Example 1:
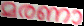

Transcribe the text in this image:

മരണാ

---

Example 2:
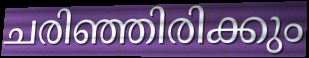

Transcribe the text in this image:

ചരിഞ്ഞിരിക്കും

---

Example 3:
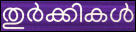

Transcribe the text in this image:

തുർക്കികൾ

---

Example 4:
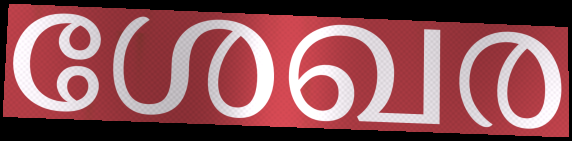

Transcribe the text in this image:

ശേഖര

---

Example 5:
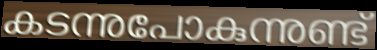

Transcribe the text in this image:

കടന്നുപോകുന്നുണ്ട്